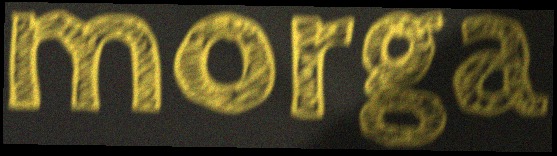
morga